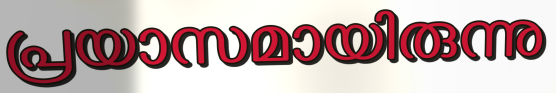
പ്രയാസമായിരുന്നു